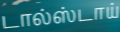
டால்ஸ்டாய்